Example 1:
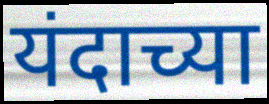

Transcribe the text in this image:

यंदाच्या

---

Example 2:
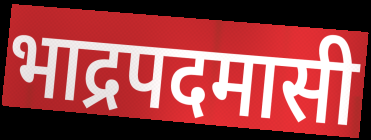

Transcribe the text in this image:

भाद्रपदमासी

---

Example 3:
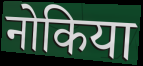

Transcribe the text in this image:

नोकिया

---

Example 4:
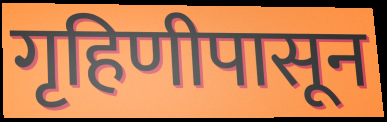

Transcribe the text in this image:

गृहिणीपासून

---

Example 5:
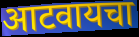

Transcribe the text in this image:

आटवायचा